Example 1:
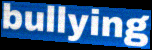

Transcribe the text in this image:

bullying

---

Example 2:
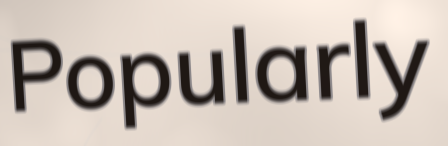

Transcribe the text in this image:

Popularly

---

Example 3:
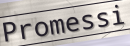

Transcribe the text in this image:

Promessi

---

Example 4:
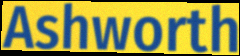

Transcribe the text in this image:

Ashworth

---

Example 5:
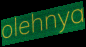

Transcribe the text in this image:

olehnya